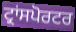
ਟ੍ਰਾਂਸਪੋਰਟਰ